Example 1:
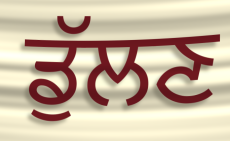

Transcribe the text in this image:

ਡੁੱਲਣ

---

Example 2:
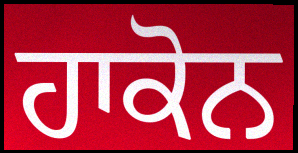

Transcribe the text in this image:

ਹਾਕੋਨ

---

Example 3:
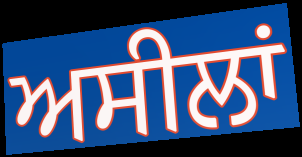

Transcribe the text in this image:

ਅਸੀਲਾਂ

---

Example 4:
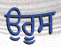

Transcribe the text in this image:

ਉਰੂਸ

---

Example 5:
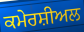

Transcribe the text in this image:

ਕਮੇਰਸ਼ੀਅਲ